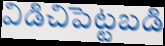
విడిచిపెట్టబడి